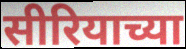
सीरियाच्या